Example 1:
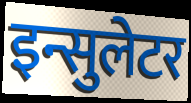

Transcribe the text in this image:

इन्सुलेटर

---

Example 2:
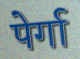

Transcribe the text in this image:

पेर्गा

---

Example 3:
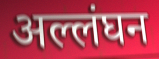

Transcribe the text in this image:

अल्लंघन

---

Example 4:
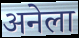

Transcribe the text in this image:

अनेला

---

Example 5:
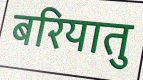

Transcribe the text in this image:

बरियातु